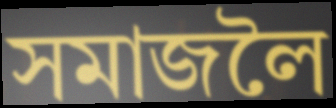
সমাজলৈ